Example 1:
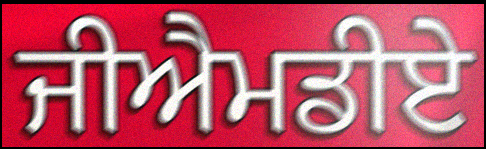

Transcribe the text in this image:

ਜੀਐਮਡੀਏ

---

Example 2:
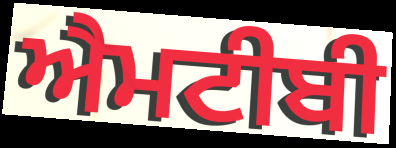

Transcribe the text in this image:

ਐਮਟੀਬੀ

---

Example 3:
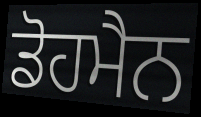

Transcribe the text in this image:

ਡੋਹਮੈਨ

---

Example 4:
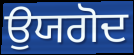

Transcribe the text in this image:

ਉਯਗੋਦ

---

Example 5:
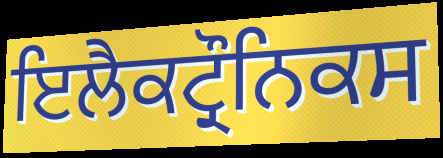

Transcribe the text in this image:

ਇਲੈਕਟ੍ਰੌਨਿਕਸ